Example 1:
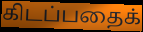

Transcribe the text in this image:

கிடப்பதைக்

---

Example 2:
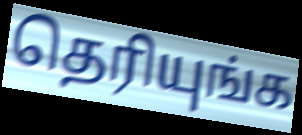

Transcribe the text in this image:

தெரியுங்க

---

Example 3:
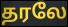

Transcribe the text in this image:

தரலே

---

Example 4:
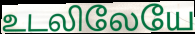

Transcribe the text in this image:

உடலிலேயே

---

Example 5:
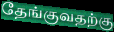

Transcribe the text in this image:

தேங்குவதற்கு